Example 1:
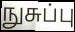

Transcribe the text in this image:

நுசுப்பு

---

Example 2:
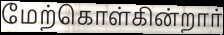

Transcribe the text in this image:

மேற்கொள்கின்றார்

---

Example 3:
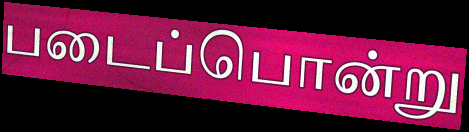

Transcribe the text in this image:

படைப்பொன்று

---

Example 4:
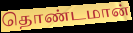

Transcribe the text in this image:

தொண்டமான்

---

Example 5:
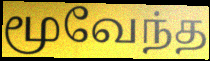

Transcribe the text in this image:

மூவேந்த